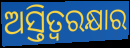
ଅସ୍ତିତ୍ୱରକ୍ଷାର